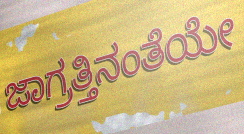
ಜಾಗ್ರತ್ತಿನಂತೆಯೇ